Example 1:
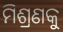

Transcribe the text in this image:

ମିଶ୍ରଣକୁ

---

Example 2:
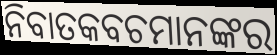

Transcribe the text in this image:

ନିବାତକବଚମାନଙ୍କର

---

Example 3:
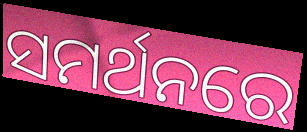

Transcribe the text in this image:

ସମର୍ଥନରେ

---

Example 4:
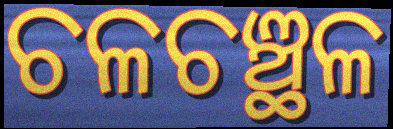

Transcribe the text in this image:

ଚଳଚଞ୍ଛଳ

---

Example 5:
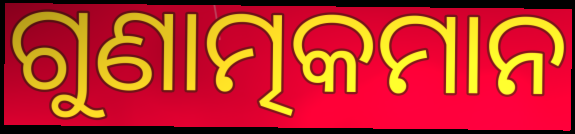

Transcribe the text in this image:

ଗୁଣାତ୍ମକମାନ